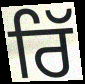
ਰਿੱ